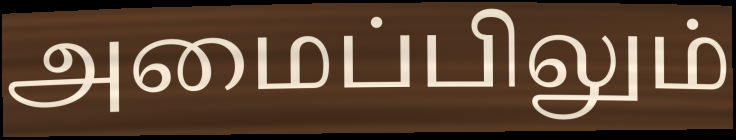
அமைப்பிலும்